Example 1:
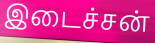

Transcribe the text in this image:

இடைச்சன்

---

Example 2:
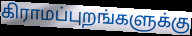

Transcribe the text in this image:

கிராமப்புறங்களுக்கு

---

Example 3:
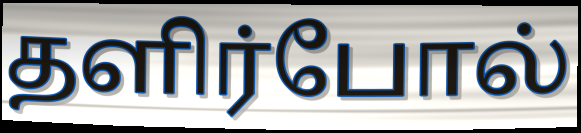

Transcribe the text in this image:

தளிர்போல்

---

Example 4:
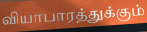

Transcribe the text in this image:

வியாபாரத்துக்கும்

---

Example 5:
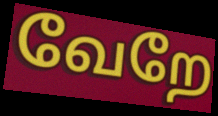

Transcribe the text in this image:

வேறே